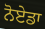
ਨੋਏਡਾ